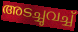
അടച്ചുവച്ച്